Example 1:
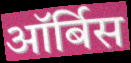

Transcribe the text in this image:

ऑर्बिस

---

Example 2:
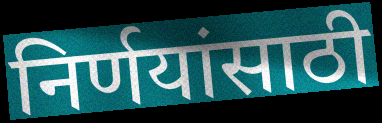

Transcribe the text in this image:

निर्णयांसाठी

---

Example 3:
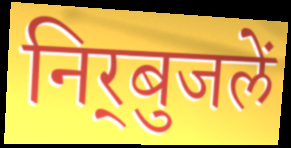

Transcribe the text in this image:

निर्बुजलें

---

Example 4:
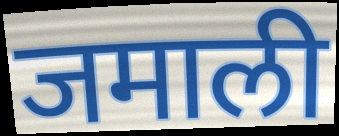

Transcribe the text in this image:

जमाली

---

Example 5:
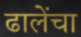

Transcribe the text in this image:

ढालेंचा